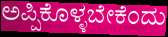
ಅಪ್ಪಿಕೊಳ್ಳಬೇಕೆಂದು